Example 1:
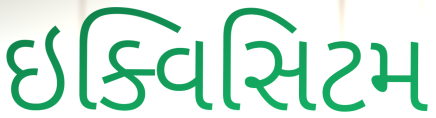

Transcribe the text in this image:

ઇક્વિસિટમ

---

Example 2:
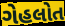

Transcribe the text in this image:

ગેહલોત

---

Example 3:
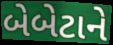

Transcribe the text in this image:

બેબેટાને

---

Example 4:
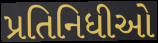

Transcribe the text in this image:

પ્રતિનિધીઓ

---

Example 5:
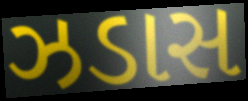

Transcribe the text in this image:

ઝડાસ